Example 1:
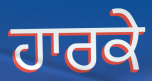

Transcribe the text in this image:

ਹਾਰਕੇ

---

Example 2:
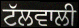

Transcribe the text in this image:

ਟੱਲਵਾਲੀ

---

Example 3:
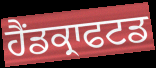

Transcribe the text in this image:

ਹੈਂਡਕ੍ਰਾਫਟਡ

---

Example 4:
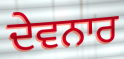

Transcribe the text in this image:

ਦੇਵਨਾਰ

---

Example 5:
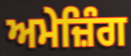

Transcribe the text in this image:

ਅਮੇਜ਼ਿੰਗ